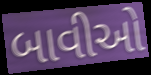
બાવીઓ